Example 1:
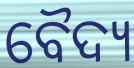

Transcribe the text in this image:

ବୈଦ୍ଯ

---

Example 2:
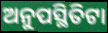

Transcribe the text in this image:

ଅନୁପସ୍ଥିତିଟା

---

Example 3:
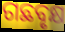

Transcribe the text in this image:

ଗଛବୃକ୍ଷ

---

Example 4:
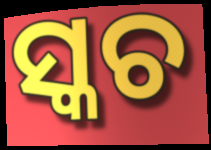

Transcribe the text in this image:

ସ୍କଚ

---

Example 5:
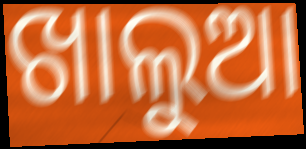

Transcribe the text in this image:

ଖାଲୁଆ